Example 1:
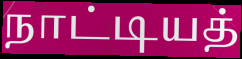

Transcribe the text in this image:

நாட்டியத்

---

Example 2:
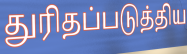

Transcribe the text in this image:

துரிதப்படுத்திய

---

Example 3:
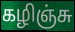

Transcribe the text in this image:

கழிஞ்சு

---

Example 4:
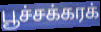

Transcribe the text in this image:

பூச்சக்கரக்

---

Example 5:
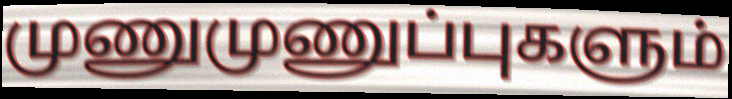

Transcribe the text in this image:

முணுமுணுப்புகளும்